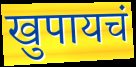
खुपायचं